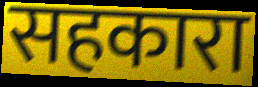
सहकारा